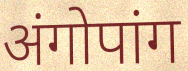
अंगोपांग